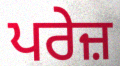
ਪਰੇਜ਼